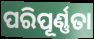
ପରିପୂର୍ଣ୍ଣତା